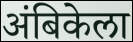
अंबिकेला